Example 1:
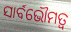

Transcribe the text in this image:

ସାର୍ବଭୌମତ୍ଵ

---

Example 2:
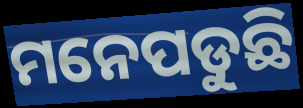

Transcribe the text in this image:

ମନେପଡୁଛି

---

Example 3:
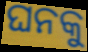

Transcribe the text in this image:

ଘନକୁ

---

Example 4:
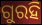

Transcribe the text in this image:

ଗୁରହି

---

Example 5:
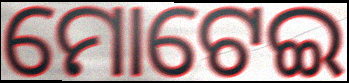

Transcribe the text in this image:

ମୋଟେଇ